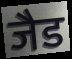
जैड